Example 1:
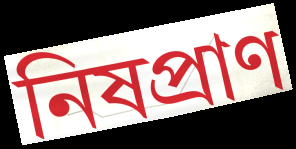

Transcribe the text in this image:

নিষপ্রাণ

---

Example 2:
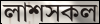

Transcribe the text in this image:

লাশসকল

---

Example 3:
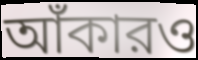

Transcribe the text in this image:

আঁকারও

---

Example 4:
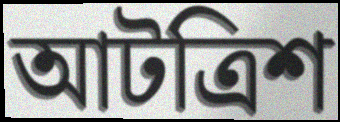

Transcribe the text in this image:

আটত্রিশ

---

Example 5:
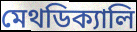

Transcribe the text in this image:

মেথডিক্যালি